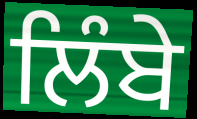
ਲਿੰਬੇ